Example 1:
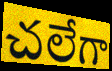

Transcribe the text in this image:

చలేగా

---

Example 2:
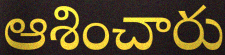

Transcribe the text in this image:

ఆశించారు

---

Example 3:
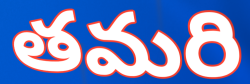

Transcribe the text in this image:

తమరి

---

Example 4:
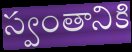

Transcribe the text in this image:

స్వంతానికి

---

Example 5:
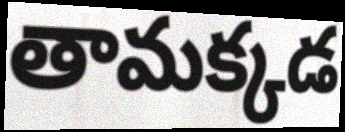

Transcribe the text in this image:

తామక్కడ